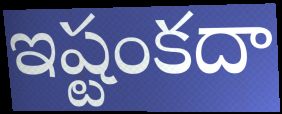
ఇష్టంకదా